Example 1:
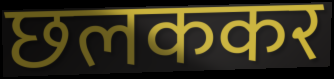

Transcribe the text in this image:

छलककर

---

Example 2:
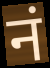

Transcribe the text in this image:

नं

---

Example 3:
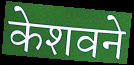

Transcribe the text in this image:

केशवने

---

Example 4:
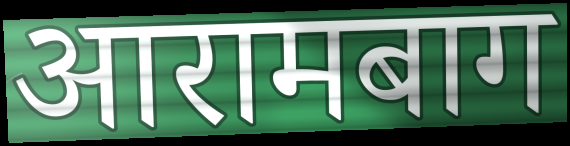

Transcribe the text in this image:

आरामबाग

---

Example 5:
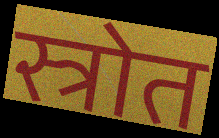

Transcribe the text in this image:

स्त्रोत